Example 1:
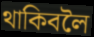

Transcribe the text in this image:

থাকিবলৈ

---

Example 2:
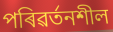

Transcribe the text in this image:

পৰিৱৰ্তনশীল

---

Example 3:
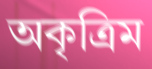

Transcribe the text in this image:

অকৃত্ৰিম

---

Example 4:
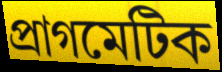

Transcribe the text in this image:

প্ৰাগমেটিক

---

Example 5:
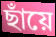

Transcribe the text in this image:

ছাঁয়ে